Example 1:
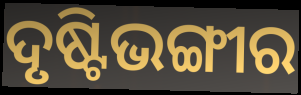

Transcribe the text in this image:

ଦୃଷ୍ଟିଭଙ୍ଗୀର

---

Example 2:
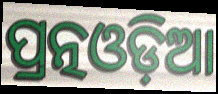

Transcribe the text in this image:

ପ୍ରତ୍ନଓଡ଼ିଆ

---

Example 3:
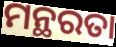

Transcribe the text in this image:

ମନ୍ଥରତା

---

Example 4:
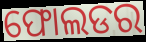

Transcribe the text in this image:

ଫୋଲଡର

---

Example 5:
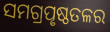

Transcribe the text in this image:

ସମଗ୍ରପୃଷ୍ଠତଳର